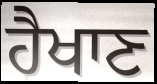
ਹੈਖਾਣ